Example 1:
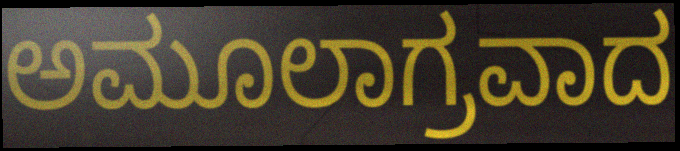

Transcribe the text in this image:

ಅಮೂಲಾಗ್ರವಾದ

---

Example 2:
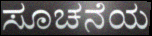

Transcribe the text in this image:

ಸೂಚನೆಯ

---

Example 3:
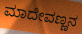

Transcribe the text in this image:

ಮಾದೇವಣ್ಣನ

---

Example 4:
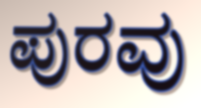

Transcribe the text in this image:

ಪುರವು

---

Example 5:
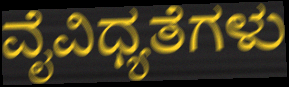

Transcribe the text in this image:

ವೈವಿಧ್ಯತೆಗಳು